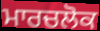
ਮਾਰਚਲੋਕ